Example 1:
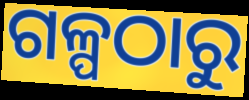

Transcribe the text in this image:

ଗଳ୍ପଠାରୁ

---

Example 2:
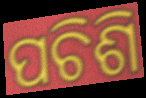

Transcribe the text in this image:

ପଚିଶି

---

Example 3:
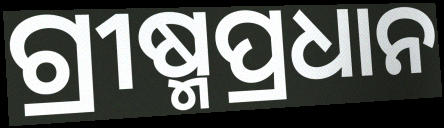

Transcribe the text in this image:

ଗ୍ରୀଷ୍ମପ୍ରଧାନ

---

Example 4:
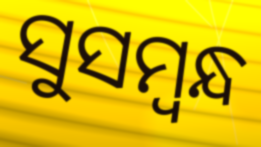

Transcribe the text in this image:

ସୁସମ୍ବନ୍ଧ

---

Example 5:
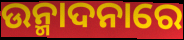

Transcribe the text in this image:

ଉନ୍ମାଦନାରେ